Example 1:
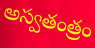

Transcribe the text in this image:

అస్వతంత్రం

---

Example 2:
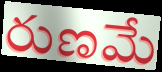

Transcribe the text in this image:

రుణమే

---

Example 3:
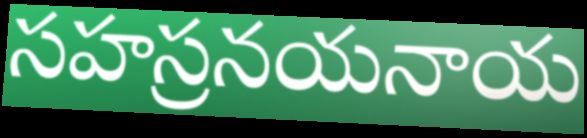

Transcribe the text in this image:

సహస్రనయనాయ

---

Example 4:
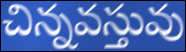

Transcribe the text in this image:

చిన్నవస్తువు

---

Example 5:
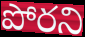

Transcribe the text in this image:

పోరని